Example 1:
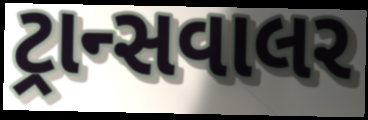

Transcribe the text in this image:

ટ્રાન્સવાલર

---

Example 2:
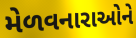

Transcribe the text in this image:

મેળવનારાઓને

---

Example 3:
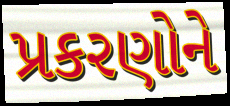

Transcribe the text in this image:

પ્રકરણોને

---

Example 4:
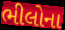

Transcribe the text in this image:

ભીલોના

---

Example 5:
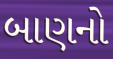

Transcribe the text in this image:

બાણનો